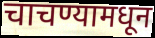
चाचण्यामधून